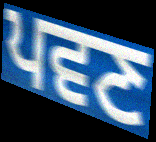
ਪਵਣ